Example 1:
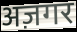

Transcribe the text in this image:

अज़गर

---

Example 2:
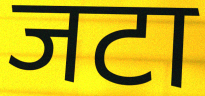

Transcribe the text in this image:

जटा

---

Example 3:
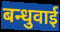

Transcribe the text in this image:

बन्धुवाई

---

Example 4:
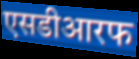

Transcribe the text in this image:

एसडीआरफ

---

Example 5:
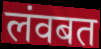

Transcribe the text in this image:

लंवबत